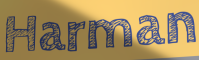
Harman